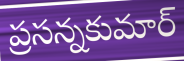
ప్రసన్నకుమార్